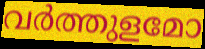
വർത്തുളമോ